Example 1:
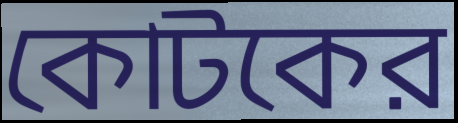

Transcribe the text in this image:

কোটকের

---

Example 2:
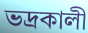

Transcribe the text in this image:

ভদ্রকালী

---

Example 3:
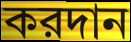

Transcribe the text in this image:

করদান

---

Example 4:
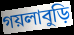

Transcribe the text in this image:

গয়লাবুড়ি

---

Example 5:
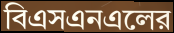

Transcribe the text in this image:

বিএসএনএলের